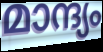
മാന്ദ്യം